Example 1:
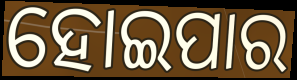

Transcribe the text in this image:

ହୋଇପାର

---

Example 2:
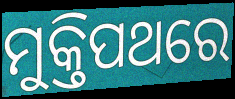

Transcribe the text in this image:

ମୁକ୍ତିପଥରେ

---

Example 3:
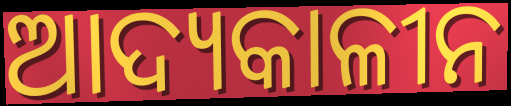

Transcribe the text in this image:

ଆଦ୍ୟକାଳୀନ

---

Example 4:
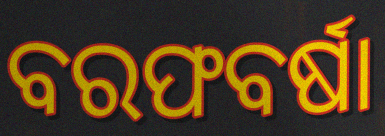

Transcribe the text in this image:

ବରଫବର୍ଷା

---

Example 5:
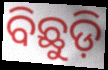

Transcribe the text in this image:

ବିଛୁଡ଼ି